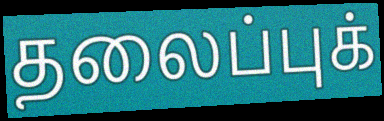
தலைப்புக்